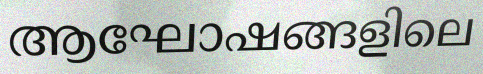
ആഘോഷങ്ങളിലെ